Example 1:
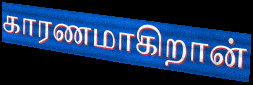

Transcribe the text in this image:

காரணமாகிறான்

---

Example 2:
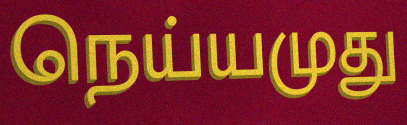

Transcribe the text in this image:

நெய்யமுது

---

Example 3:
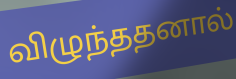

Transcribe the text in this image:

விழுந்ததனால்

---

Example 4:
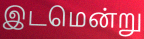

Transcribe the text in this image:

இடமென்று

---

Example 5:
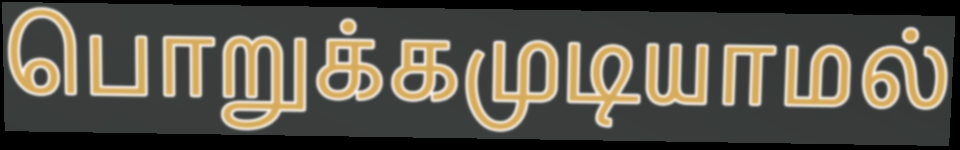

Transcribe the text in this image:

பொறுக்கமுடியாமல்